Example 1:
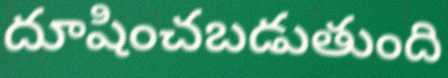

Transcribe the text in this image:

దూషించబడుతుంది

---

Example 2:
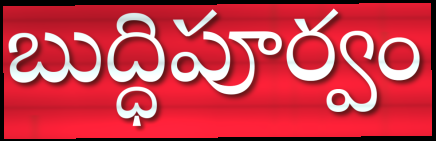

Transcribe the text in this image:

బుద్ధిపూర్వం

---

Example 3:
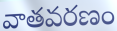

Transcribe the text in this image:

వాతవరణం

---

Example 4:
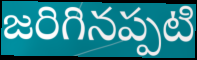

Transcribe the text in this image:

జరిగినప్పటి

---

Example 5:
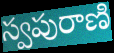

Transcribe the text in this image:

స్వపురాణి